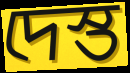
দেস্ত